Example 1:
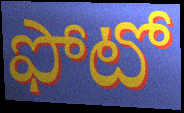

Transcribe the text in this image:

ఫోటో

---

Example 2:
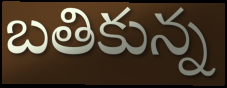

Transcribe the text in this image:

బతికున్న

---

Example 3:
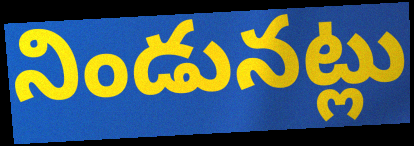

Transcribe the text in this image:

నిండునట్లు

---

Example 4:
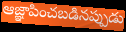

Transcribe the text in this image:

ఆజ్ఞాపించబడినప్పుడు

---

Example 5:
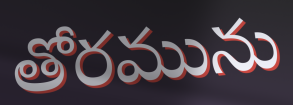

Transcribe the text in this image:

తోరమును